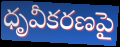
ధృవీకరణపై